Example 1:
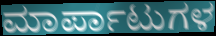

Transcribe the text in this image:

ಮಾರ್ಪಾಟುಗಳ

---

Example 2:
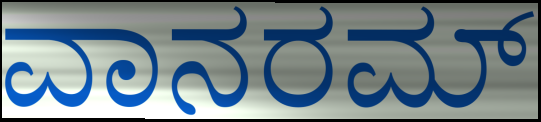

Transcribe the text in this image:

ವಾನರಮ್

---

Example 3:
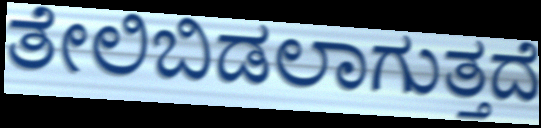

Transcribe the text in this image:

ತೇಲಿಬಿಡಲಾಗುತ್ತದೆ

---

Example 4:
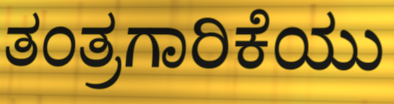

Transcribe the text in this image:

ತಂತ್ರಗಾರಿಕೆಯು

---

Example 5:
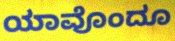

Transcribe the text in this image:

ಯಾವೊಂದೂ